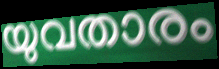
യുവതാരം